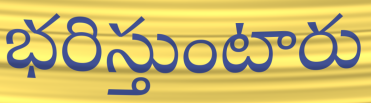
భరిస్తుంటారు